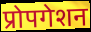
प्रोपगेशन